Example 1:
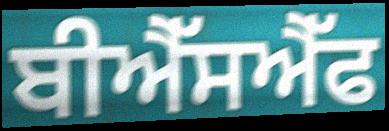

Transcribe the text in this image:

ਬੀਐੱਸਐੱਫ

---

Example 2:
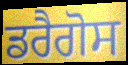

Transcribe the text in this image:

ਡਰੈਗੋਸ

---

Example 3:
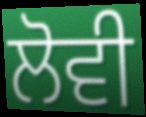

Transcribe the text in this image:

ਲੋਵੀ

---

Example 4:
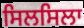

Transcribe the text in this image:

ਸਿਲਸਿਲਾ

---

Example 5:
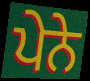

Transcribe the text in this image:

ਪੇਨੇ